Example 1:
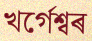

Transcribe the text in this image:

খৰ্গেশ্বৰ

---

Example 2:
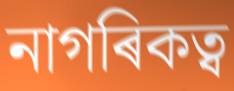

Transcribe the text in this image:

নাগৰিকত্ব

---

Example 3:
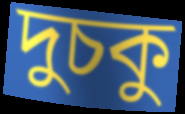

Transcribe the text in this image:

দুচকু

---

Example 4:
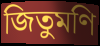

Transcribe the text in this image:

জিতুমণি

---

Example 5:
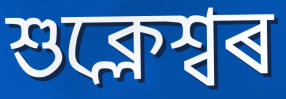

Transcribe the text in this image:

শুক্লেশ্বৰ